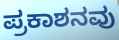
ಪ್ರಕಾಶನವು